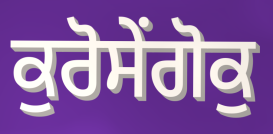
ਕੁਰੋਸੇਂਗੋਕੁ